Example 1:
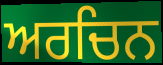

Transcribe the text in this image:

ਅਰਚਿਨ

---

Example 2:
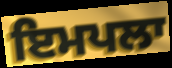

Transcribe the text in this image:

ਇਮਪਲਾ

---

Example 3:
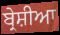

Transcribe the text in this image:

ਬ੍ਰੇਸ਼ੀਆ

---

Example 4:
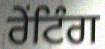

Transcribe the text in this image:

ਰੇਂਟਿੰਗ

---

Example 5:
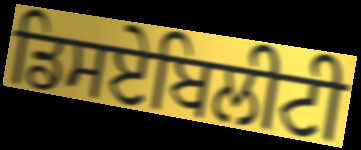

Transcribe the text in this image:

ਡਿਸਏਬਿਲੀਟੀ